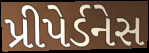
પ્રીપેર્ડનેસ